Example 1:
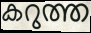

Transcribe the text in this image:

കറുത്ത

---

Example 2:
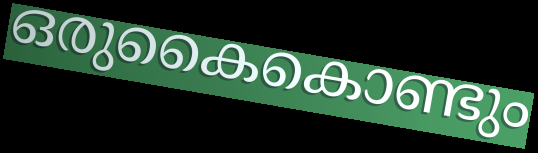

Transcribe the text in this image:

ഒരുകൈകൊണ്ടും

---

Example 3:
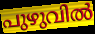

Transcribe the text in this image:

പുഴുവിൽ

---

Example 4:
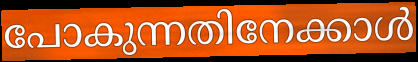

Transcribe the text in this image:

പോകുന്നതിനേക്കാൾ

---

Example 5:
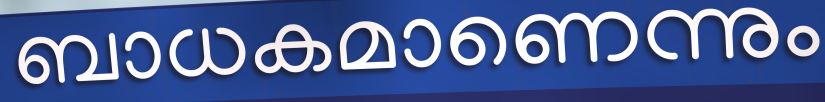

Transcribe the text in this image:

ബാധകമാണെന്നും